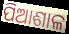
ପିଆଶାଳ